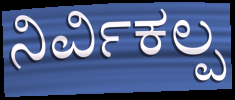
ನಿರ್ವಿಕಲ್ಪ